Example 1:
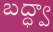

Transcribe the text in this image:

బద్ధ్వా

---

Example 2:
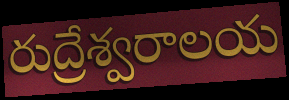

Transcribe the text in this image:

రుద్రేశ్వరాలయ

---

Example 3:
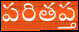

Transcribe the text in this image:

పరితప్త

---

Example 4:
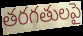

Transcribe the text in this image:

తరగతులపై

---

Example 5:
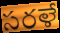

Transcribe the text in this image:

సరళే